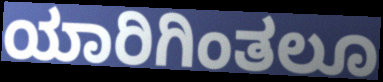
ಯಾರಿಗಿಂತಲೂ